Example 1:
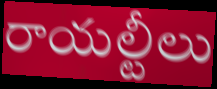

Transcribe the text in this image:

రాయల్టీలు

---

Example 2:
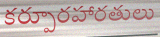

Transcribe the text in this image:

కర్పూరహారతులు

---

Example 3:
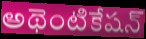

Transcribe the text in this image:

అథెంటికేషన్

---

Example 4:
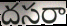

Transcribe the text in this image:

దసరా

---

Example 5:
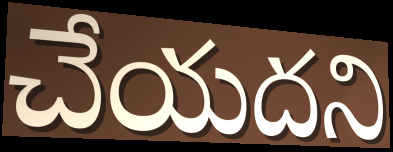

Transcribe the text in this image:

చేయదని